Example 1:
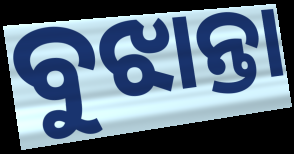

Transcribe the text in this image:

ବୁଝାନ୍ତା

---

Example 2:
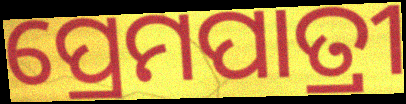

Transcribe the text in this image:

ପ୍ରେମପାତ୍ରୀ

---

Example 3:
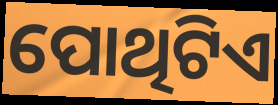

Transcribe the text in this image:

ପୋଥିଟିଏ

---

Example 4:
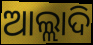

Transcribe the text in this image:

ଆଲ୍ଲାଦି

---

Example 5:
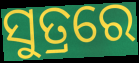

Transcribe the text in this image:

ସୁତ୍ରରେ